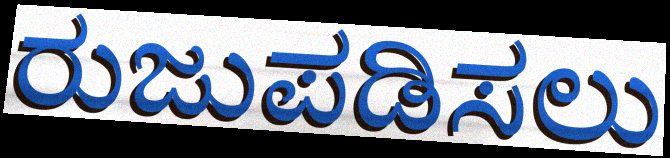
ರುಜುಪಡಿಸಲು